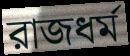
রাজধর্ম